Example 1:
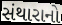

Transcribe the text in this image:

સંથારાનો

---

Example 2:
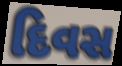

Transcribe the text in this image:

દિવસ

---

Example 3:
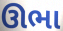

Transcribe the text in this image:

ઊભા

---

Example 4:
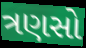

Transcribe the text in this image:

ત્રણસો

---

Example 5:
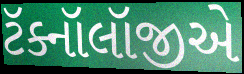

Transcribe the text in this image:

ટૅક્નૉલૉજીએ